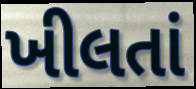
ખીલતાં